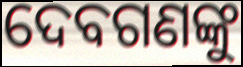
ଦେବଗଣଙ୍କୁ